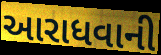
આરાધવાની